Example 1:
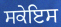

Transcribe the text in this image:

ਸਕੇਇਸ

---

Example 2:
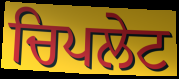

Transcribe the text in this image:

ਚਿਪਲੇਟ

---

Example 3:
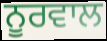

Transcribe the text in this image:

ਨੂਰਵਾਲ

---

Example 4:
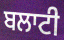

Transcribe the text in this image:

ਬਲਾਟੀ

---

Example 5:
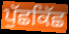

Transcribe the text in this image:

ਪੁੱਛਕਿੱਛ